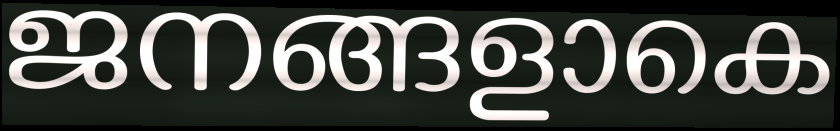
ജനങ്ങളാകെ